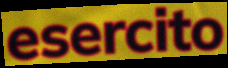
esercito